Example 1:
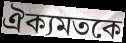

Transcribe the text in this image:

ঐক্যমতকে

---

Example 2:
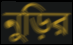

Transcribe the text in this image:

নুড়ির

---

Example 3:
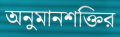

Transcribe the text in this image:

অনুমানশক্তির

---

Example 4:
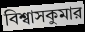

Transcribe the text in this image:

বিশ্বাসকুমার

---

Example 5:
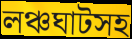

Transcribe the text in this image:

লঞ্চঘাটসহ